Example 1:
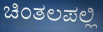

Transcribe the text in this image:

ಚಿಂತಲಪಲ್ಲಿ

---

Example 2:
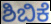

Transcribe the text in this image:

ಶಿಬಿಕೆ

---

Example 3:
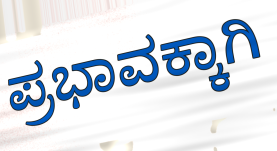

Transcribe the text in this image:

ಪ್ರಭಾವಕ್ಕಾಗಿ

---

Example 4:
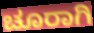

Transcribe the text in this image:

ಚೂರಾಗಿ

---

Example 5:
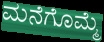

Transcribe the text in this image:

ಮನೆಗೊಮ್ಮೆ